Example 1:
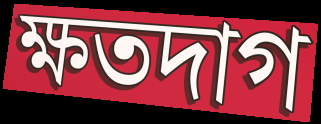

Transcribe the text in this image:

ক্ষতদাগ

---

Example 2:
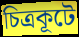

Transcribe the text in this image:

চিত্রকূটে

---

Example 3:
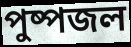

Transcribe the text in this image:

পুষ্পজল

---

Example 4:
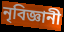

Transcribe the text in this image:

নৃবিজ্ঞানী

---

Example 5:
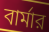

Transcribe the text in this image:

বার্মার